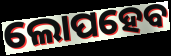
ଲୋପହେବ